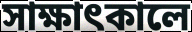
সাক্ষাৎকালে